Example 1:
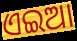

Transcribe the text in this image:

ଏଇଆ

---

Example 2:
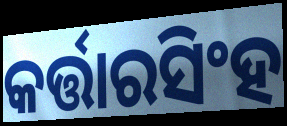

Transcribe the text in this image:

କର୍ତ୍ତାରସିଂହ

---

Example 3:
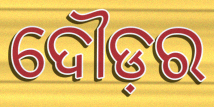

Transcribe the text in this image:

ଦୌଡ଼ର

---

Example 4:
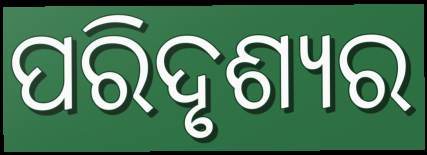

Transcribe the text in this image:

ପରିଦୃଶ୍ୟର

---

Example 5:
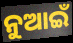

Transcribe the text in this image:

ନୁଆଇଁ